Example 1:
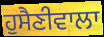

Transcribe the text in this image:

ਹੁਸੈਣੀਵਾਲਾ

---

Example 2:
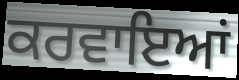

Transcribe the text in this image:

ਕਰਵਾਇਆਂ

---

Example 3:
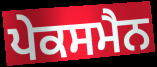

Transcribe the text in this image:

ਪੇਕਸਮੈਨ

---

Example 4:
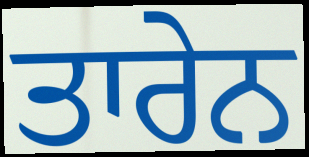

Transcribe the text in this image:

ਤਾਰੇਨ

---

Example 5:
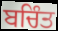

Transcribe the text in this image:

ਬਚਿੰਤ